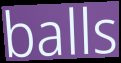
balls